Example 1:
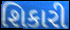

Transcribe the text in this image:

શિકારી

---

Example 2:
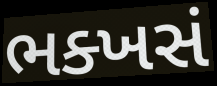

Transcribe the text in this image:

ભક્ખસં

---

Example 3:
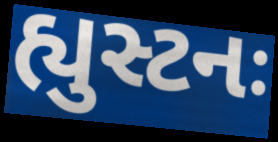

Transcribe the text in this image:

હ્યુસ્ટનઃ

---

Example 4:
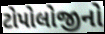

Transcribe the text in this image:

ટોપોલોજીનો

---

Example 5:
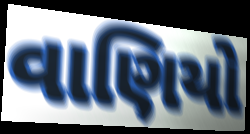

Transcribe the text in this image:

વાણિયો